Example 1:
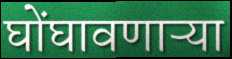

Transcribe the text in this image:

घोंघावणाऱ्या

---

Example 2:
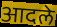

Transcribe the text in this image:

आदले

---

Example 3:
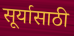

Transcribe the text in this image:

सूर्यासाठी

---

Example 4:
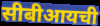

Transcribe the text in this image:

सीबीआयची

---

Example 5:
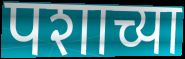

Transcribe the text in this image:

पशाच्या